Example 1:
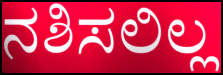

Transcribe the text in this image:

ನಶಿಸಲಿಲ್ಲ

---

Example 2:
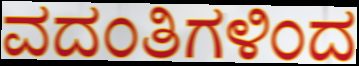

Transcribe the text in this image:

ವದಂತಿಗಳಿಂದ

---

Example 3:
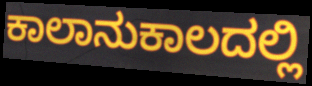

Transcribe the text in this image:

ಕಾಲಾನುಕಾಲದಲ್ಲಿ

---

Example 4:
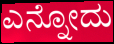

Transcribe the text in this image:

ಎನ್ನೋದು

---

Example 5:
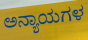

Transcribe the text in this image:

ಅನ್ಯಾಯಗಳ